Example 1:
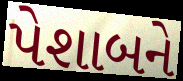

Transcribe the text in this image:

પેશાબને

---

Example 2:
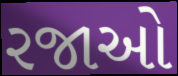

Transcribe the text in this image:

રજાઓ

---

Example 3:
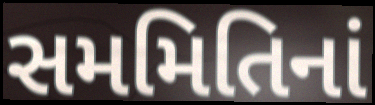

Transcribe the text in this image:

સમમિતિનાં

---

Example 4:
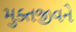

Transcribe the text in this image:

મુક્તજીવને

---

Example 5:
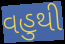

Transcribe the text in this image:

વહુથી